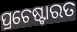
ପ୍ରଚେଷ୍ଟାରତ